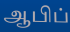
ஆபிப்